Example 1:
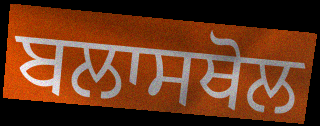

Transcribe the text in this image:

ਬਲਾਸਥੋਲ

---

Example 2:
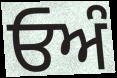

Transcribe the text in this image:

ਓਅੰ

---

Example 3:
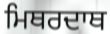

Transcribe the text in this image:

ਮਿਥਰਦਾਥ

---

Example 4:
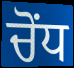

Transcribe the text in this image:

ਚੋਂਧ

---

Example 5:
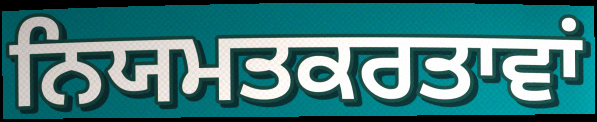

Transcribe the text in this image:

ਨਿਯਮਤਕਰਤਾਵਾਂ